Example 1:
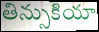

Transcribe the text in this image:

తిన్సుకియా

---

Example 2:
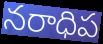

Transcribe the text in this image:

నరాధిప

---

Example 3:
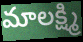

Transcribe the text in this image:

మాలక్ష్మి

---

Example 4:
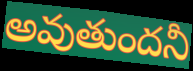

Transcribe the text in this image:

అవుతుందనీ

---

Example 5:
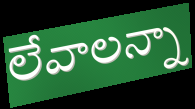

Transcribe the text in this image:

లేవాలన్నా